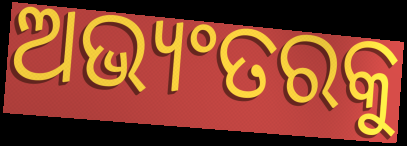
ଅଭ୍ୟଂତରକୁ